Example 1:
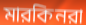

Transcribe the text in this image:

মারকিনরা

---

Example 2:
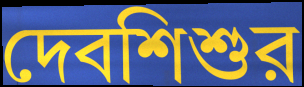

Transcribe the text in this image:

দেবশিশুর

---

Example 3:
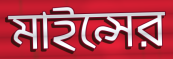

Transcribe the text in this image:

মাইন্সের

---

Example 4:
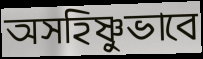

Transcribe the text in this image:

অসহিষ্ণুভাবে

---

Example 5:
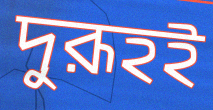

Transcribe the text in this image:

দুরূহই